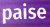
paise